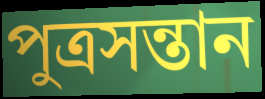
পুত্রসন্তান